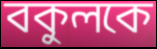
বকুলকে